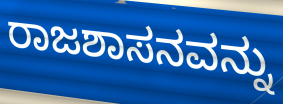
ರಾಜಶಾಸನವನ್ನು